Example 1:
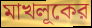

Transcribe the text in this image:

মাখলূকের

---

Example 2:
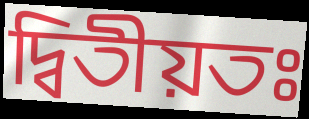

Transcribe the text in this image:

দ্বিতীয়তঃ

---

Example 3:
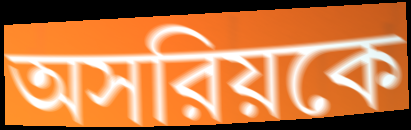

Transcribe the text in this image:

অসরিয়কে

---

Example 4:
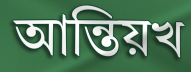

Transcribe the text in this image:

আন্তিয়খ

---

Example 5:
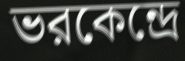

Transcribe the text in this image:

ভরকেন্দ্রে